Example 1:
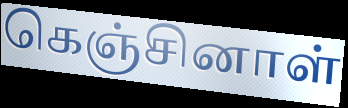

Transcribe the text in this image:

கெஞ்சினாள்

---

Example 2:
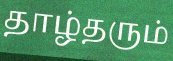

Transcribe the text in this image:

தாழ்தரும்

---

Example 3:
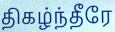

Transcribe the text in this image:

திகழ்ந்தீரே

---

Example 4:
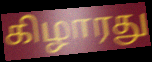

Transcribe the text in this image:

கிழாரது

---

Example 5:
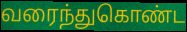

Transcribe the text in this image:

வரைந்துகொண்ட